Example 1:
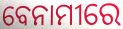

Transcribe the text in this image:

ବେନାମୀରେ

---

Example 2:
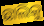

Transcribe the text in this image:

ଛାଲିକୁ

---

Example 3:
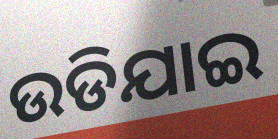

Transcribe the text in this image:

ଉଡିଯାଇ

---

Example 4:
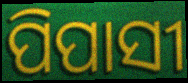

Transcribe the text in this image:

ପିପାସୀ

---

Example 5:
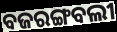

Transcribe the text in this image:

ବଜରଙ୍ଗବଲୀ